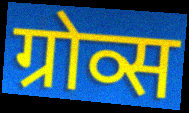
ग्रोव्स